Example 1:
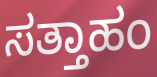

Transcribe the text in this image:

ಸತ್ತಾಹಂ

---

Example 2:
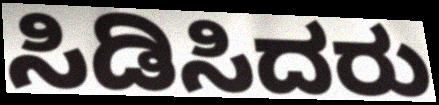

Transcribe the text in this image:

ಸಿಡಿಸಿದರು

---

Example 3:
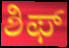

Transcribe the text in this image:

ಶಿಫ್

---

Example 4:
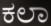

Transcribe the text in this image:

ಕಲಾ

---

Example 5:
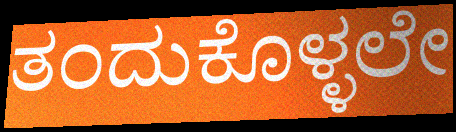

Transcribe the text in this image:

ತಂದುಕೊಳ್ಳಲೇ